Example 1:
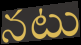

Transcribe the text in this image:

నటు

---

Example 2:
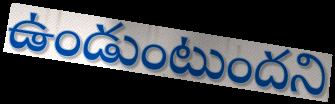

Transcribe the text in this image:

ఉండుంటుందని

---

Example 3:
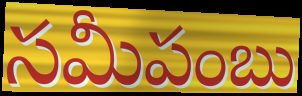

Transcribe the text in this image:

సమీపంబు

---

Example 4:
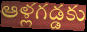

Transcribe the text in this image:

ఆళ్లగడ్డకు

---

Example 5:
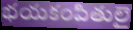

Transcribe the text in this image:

భయకంపితులై